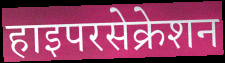
हाइपरसेक्रेशन